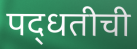
पद्धतीची